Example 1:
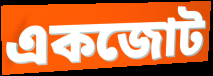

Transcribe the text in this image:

একজোট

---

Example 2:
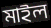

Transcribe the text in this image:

মাইল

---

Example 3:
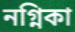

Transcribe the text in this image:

নগ্নিকা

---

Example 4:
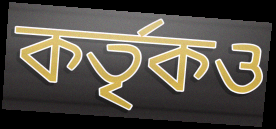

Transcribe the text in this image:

কর্তৃকও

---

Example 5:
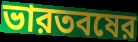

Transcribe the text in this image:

ভারতবষের